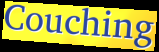
Couching